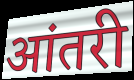
आंतरी